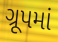
ગ્રૂપમાં